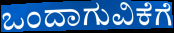
ಒಂದಾಗುವಿಕೆಗೆ